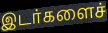
இடர்களைச்